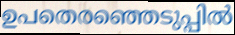
ഉപതെരഞ്ഞെടുപ്പിൽ